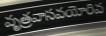
వృత్రవాసవయోరివ